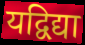
यद्विद्या